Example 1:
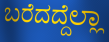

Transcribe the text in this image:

ಬರೆದದ್ದೆಲ್ಲಾ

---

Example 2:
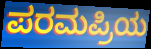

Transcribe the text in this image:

ಪರಮಪ್ರಿಯ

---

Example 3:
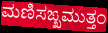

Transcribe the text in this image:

ಮಣಿಸಙ್ಖಮುತ್ತಂ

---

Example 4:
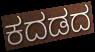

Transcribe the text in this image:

ಕದಡದ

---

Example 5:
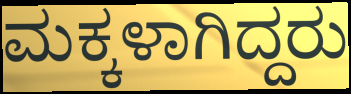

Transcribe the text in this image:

ಮಕ್ಕಳಾಗಿದ್ದರು